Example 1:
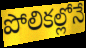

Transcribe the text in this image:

పోలికల్లోనే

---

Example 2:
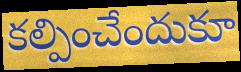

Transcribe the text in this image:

కల్పించేందుకూ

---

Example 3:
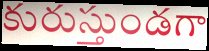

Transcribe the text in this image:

కురుస్తుండగా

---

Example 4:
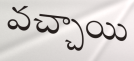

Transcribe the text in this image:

వచ్చాయి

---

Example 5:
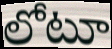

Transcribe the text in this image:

లోటూ